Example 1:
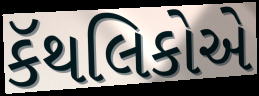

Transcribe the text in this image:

કૅથલિકોએ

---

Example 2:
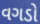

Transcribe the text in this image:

વગડો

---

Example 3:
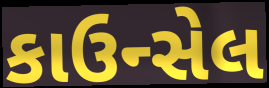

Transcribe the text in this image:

કાઉન્સેલ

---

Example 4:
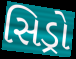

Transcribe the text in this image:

સિડ્રો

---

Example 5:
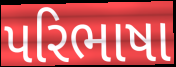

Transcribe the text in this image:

પરિભાષા